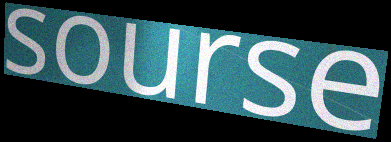
sourse